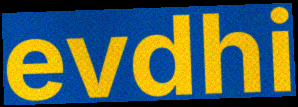
evdhi